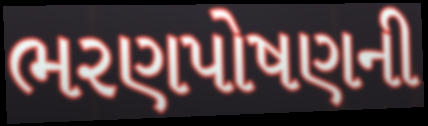
ભરણપોષણની